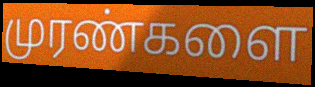
முரண்களை